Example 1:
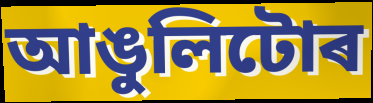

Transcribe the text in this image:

আঙুলিটোৰ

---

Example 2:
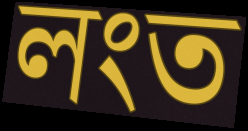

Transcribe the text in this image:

লংত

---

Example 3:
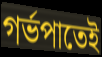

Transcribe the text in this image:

গৰ্ভপাতেই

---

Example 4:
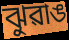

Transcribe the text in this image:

ঝুৱাঙ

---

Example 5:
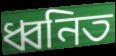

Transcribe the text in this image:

ধ্বনিত